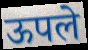
ऊपले